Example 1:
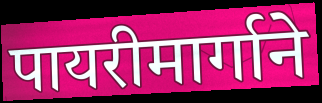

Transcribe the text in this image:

पायरीमार्गाने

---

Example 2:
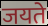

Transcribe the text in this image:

जयते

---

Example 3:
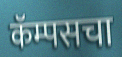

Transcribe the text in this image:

कॅम्पसचा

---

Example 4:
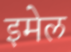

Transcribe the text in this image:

इमेल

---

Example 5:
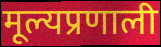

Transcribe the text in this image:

मूल्यप्रणाली